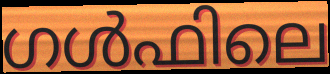
ഗൾഫിലെ